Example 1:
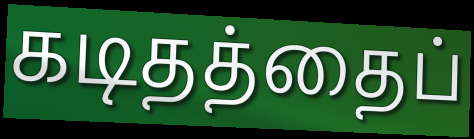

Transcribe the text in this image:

கடிதத்தைப்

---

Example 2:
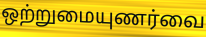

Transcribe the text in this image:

ஒற்றுமையுணர்வை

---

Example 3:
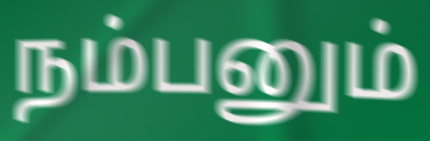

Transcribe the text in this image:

நம்பனும்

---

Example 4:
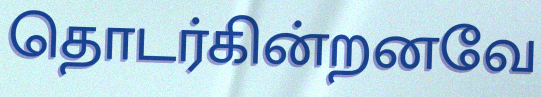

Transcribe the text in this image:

தொடர்கின்றனவே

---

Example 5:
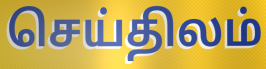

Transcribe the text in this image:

செய்திலம்